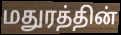
மதுரத்தின்